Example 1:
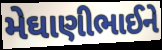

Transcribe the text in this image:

મેઘાણીભાઈને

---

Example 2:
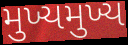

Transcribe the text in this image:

મુખ્યમુખ્ય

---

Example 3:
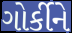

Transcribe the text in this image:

ગોર્કીને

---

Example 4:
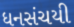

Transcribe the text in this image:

ધનસંચયી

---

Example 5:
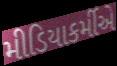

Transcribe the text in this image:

મીડિયાકર્મીએ